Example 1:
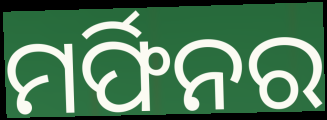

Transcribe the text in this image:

ମର୍ଫିନର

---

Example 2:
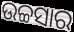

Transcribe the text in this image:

ଉଚ୍ଚସାର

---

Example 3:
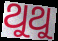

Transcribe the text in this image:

ଥୁଥୁ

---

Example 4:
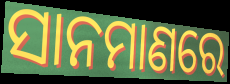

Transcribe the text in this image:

ସାନମାଣରେ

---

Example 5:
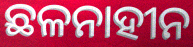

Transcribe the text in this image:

ଛଳନାହୀନ